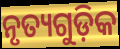
ନୃତ୍ୟଗୁଡ଼ିକ